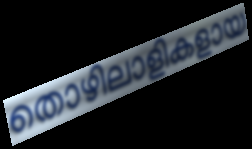
തൊഴിലാളികളായ